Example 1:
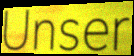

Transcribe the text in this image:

Unser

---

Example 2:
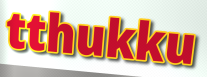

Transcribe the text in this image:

tthukku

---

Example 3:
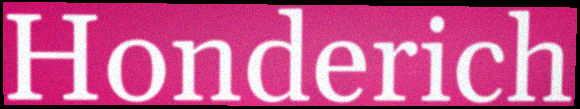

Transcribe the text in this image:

Honderich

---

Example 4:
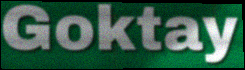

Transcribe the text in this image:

Goktay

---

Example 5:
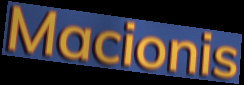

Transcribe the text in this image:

Macionis